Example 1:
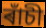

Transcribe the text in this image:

ৰাঁচী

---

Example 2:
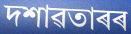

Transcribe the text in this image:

দশাৱতাৰৰ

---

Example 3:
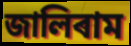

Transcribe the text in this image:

জালিৰাম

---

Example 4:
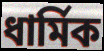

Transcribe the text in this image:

ধাৰ্মিক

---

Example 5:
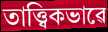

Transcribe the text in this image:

তাত্ত্বিকভাৱে